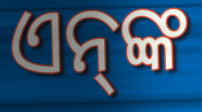
ଏନ୍‌ଙ୍କ